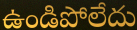
ఉండిపోలేదు